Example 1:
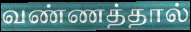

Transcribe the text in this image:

வண்ணத்தால்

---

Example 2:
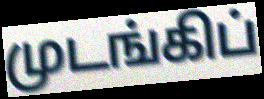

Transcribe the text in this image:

முடங்கிப்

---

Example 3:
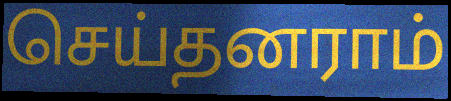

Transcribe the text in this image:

செய்தனராம்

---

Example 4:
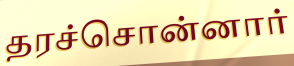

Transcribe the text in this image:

தரச்சொன்னார்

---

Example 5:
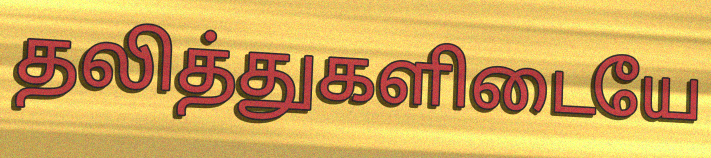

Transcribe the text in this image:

தலித்துகளிடையே